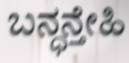
ಬನ್ಧನ್ತೇಹಿ